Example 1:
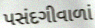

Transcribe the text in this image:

પસંદગીવાળાં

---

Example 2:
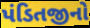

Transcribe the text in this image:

પંડિતજીનો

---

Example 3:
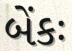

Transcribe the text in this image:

બેંકઃ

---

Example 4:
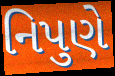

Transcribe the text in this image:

નિપુણે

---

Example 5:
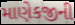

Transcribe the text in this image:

માણેકજીની